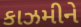
કાઝમીને